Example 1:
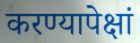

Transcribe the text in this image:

करण्यापेक्षां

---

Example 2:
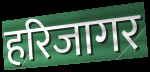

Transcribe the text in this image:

हरिजागर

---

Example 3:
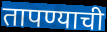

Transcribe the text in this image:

तापण्याची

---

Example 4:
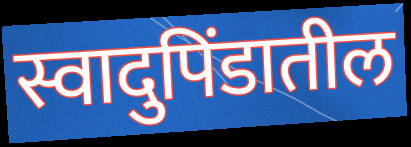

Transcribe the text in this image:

स्वादुपिंडातील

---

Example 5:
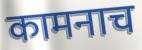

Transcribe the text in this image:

कामनाच